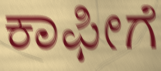
ಕಾಫೀಗೆ